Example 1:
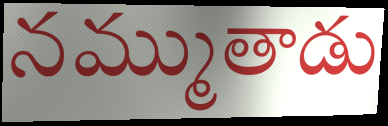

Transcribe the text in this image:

నమ్ముతాడు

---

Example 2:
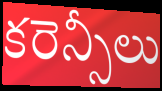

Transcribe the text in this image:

కరెన్సీలు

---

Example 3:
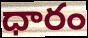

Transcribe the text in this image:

ధారం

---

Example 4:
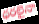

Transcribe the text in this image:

ధరలైనా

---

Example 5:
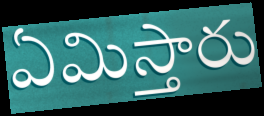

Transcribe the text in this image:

ఏమిస్తారు